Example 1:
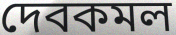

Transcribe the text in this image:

দেবকমল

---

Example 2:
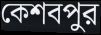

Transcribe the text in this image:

কেশবপুর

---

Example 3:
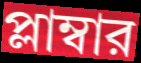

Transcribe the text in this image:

প্লাম্বার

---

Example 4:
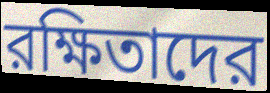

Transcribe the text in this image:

রক্ষিতাদের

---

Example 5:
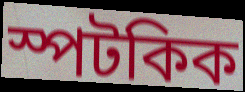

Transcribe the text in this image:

স্পটকিক